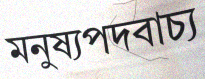
মনুষ্যপদবাচ্য